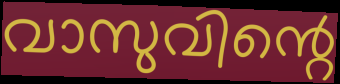
വാസുവിന്റെ